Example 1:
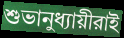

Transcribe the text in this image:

শুভানুধ্যায়ীরাই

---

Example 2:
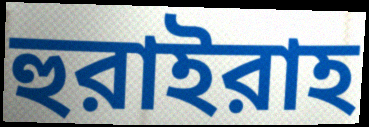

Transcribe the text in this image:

হুরাইরাহ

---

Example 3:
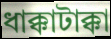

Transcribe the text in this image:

ধাক্কাটাক্কা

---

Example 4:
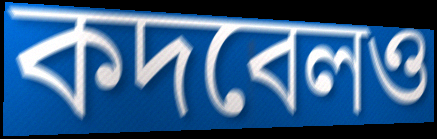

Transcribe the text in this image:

কদবেলও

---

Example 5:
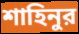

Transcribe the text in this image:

শাহিনুর